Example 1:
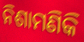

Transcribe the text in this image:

ନିଶାମଣିକି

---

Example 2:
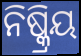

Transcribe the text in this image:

ନିଷ୍କ୍ରିୟ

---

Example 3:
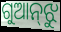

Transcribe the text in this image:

ଗୁଆନ୍‌ଝୁ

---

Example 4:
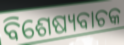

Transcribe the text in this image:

ବିଶେଷ୍ୟବାଚକ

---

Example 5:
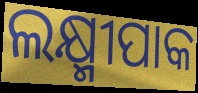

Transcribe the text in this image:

ଲକ୍ଷ୍ମୀପାକ